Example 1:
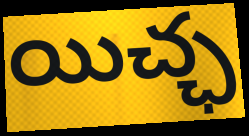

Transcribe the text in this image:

యిచ్ఛ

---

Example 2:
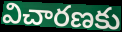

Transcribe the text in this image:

విచారణకు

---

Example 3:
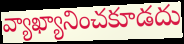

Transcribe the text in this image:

వ్యాఖ్యానించకూడదు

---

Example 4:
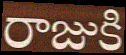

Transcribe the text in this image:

రాజుకి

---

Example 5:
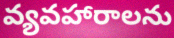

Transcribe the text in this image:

వ్యవహారాలను